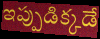
ఇప్పుడిక్కడే